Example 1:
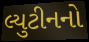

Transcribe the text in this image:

લ્યુટીનનો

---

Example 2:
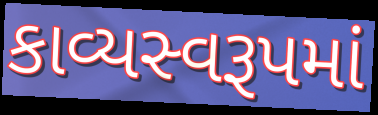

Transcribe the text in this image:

કાવ્યસ્વરૂપમાં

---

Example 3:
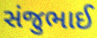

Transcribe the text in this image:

સંજુભાઈ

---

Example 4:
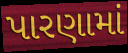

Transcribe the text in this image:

પારણામાં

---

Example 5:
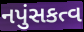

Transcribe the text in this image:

નપુંસકત્વ